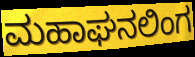
ಮಹಾಘನಲಿಂಗ